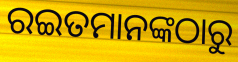
ରଇତମାନଙ୍କଠାରୁ